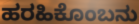
ಹರಹಿಕೊಂಬನು